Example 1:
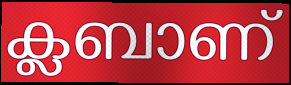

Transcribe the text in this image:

ക്ലബാണ്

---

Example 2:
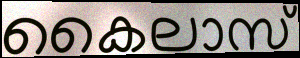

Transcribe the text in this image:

കൈലാസ്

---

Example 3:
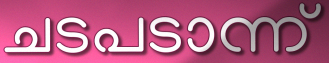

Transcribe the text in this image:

ചടപടാന്ന്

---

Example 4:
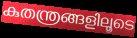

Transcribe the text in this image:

കുതന്ത്രങ്ങളിലൂടെ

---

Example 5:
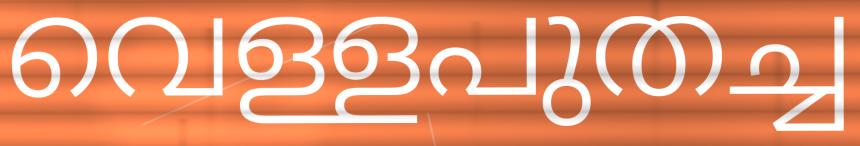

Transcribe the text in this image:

വെള്ളപുതച്ച